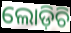
ଲୋଡ଼ିଚି